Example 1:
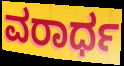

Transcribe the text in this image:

ವರಾರ್ಧ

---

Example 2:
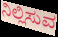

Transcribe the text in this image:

ನಿಲ್ಲಿಸುವ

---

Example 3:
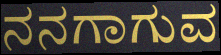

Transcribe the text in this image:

ನನಗಾಗುವ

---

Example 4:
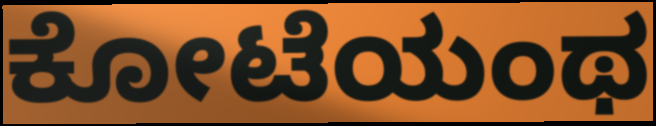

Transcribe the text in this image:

ಕೋಟೆಯಂಥ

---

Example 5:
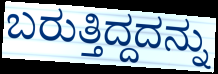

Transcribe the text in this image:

ಬರುತ್ತಿದ್ದದನ್ನು